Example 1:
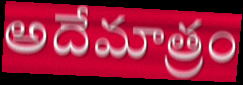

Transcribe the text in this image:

అదేమాత్రం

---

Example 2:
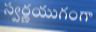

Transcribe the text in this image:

స్వర్ణయుగంగా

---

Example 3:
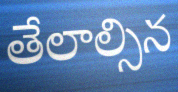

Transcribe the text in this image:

తేలాల్సిన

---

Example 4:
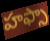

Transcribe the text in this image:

హఫ్సా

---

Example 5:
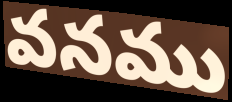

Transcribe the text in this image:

వనము